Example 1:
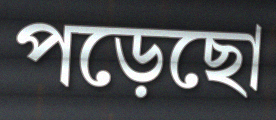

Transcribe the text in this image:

পড়েছো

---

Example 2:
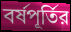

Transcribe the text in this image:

বর্ষপূর্তির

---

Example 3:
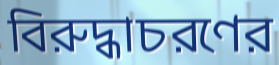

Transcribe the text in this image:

বিরুদ্ধাচরণের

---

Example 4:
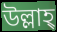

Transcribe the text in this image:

উল্লাহ্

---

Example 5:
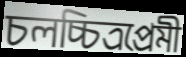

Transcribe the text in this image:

চলচ্চিত্রপ্রেমী